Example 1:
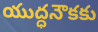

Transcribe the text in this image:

యుద్ధనౌకకు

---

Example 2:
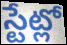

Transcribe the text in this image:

స్టేట్లో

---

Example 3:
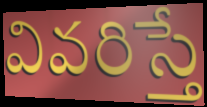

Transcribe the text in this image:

వివరిస్తే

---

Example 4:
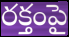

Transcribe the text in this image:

రక్తంపై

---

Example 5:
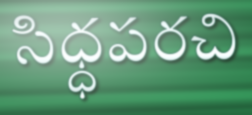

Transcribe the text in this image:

సిధ్ధపరచి